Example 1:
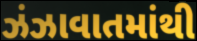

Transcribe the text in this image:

ઝંઝાવાતમાંથી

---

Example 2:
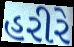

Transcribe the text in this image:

હરીરે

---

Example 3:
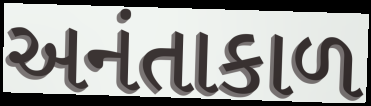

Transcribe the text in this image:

અનંતાકાળ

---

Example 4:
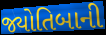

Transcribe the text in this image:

જ્યોતિબાની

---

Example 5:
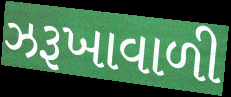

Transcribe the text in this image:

ઝરૂખાવાળી